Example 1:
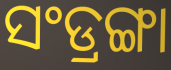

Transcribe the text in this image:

ସଂଡ୍ରଙ୍ଗା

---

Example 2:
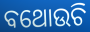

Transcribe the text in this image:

ବଥୋଉଚି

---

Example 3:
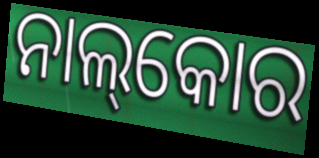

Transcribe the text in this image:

ନାଲ୍‌କୋର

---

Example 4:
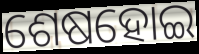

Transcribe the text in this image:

ଶେଷହୋଇ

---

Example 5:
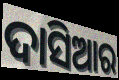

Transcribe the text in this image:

ଦାସିଆର